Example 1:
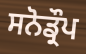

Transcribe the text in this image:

ਸਨੋਡ੍ਰੌਪ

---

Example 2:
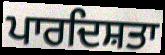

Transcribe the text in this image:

ਪਾਰਦਿਸ਼ਤਾ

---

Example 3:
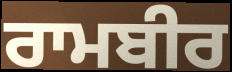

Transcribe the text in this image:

ਰਾਮਬੀਰ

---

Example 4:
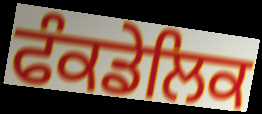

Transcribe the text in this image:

ਫੰਕਡੇਲਿਕ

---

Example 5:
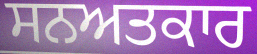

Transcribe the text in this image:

ਸਨਅਤਕਾਰ